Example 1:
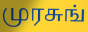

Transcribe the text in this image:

முரசுங்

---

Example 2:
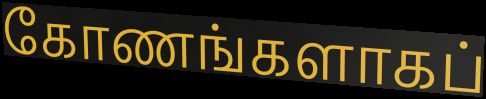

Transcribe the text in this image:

கோணங்களாகப்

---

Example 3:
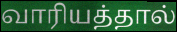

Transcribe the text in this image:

வாரியத்தால்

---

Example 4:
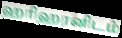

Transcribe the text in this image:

ஹரிஹரனிடம்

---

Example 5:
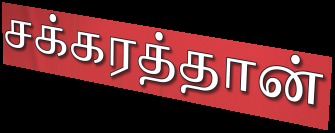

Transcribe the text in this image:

சக்கரத்தான்